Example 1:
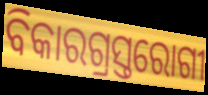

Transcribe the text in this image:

ବିକାରଗ୍ରସ୍ତରୋଗୀ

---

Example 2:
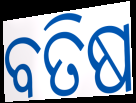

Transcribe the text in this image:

ବତିଷ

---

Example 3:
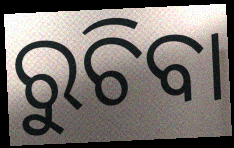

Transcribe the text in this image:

ରୁଚିବା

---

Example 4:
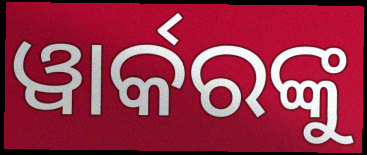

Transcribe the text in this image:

ୱାର୍କରଙ୍କୁ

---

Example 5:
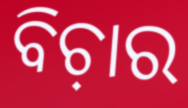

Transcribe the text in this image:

ବିଚ଼ାର